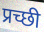
प्रच्छी